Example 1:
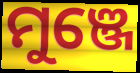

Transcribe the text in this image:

ମୁଞ୍ଜେ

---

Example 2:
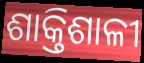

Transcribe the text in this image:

ଶାକ୍ତିଶାଳୀ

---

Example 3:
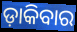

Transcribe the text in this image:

ଡ଼ାକିବାର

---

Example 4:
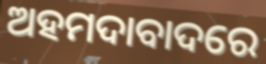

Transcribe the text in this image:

ଅହମଦାବାଦରେ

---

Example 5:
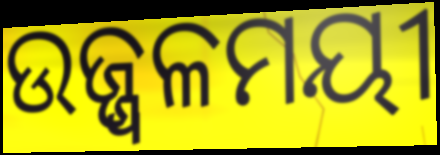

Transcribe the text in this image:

ଉଜ୍ଜ୍ୱଳମୟୀ